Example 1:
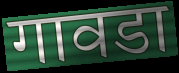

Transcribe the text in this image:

गावडा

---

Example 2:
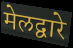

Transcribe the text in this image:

मेलद्वारे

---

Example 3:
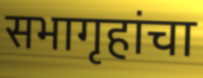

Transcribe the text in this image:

सभागृहांचा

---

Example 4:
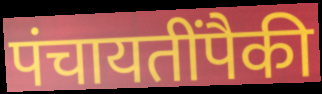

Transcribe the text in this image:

पंचायतींपैकी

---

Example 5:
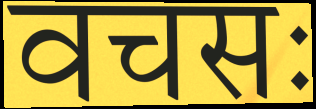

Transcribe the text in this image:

वचसः